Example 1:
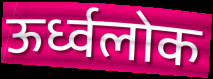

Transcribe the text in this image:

ऊर्ध्वलोक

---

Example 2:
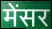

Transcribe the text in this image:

मेंसर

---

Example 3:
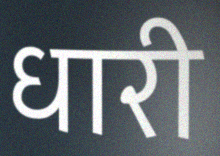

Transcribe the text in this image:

धारी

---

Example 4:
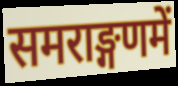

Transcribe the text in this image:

समराङ्गणमें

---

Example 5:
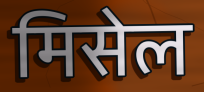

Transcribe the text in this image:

मिसेल